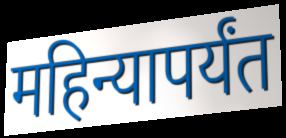
महिन्यापर्यंत